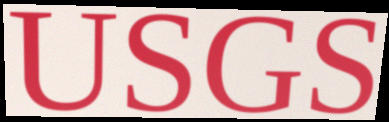
USGS